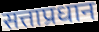
सत्ताप्रधान